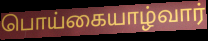
பொய்கையாழ்வார்